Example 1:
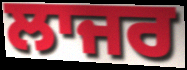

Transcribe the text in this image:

ਲਾਜਰ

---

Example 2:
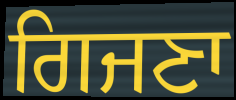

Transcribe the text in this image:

ਗਿਜਣਾ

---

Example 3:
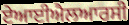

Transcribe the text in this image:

ਏਆਈਐਲਆਰਸੀ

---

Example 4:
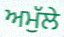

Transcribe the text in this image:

ਅਮੁੱਲੇ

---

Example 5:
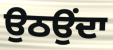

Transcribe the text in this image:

ਉਠਉਂਦਾ